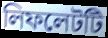
লিফলেটটি